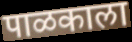
पाळकाला